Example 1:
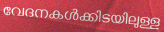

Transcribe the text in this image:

വേദനകൾക്കിടയിലുള്ള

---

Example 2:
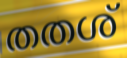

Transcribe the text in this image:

തതശ്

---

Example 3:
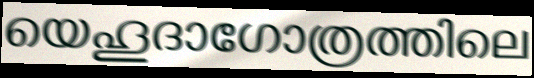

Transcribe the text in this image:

യെഹൂദാഗോത്രത്തിലെ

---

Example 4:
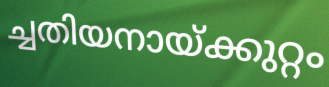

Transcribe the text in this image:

ച്ചതിയനായ്ക്കുറ്റം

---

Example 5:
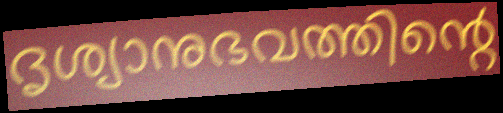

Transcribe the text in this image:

ദൃശ്യാനുഭവത്തിന്റെ